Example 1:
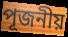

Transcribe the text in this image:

পূজনীয়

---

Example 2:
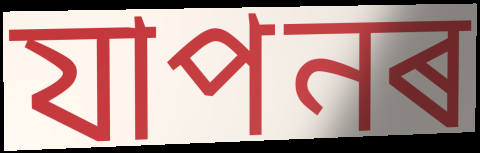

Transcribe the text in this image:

যাপনৰ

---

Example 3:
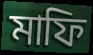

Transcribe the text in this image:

মাফি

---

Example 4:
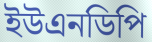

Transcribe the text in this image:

ইউএনডিপি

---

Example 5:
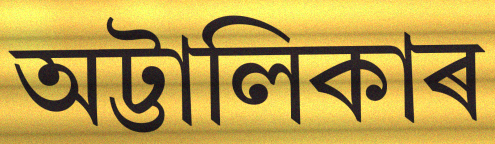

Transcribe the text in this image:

অট্টালিকাৰ